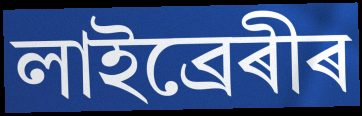
লাইব্ৰেৰীৰ